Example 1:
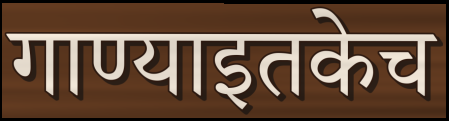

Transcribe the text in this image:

गाण्याइतकेच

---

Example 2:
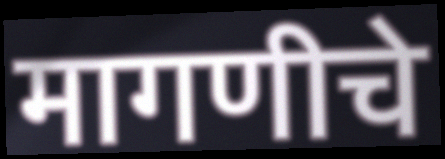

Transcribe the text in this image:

मागणीचे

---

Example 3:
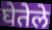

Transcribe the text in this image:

घेतेले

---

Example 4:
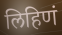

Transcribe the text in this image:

लिहिणं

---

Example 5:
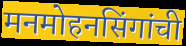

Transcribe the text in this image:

मनमोहनसिंगांची